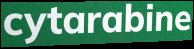
cytarabine